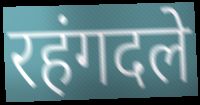
रहंगदले